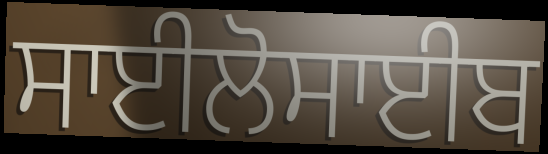
ਸਾਈਲੋਸਾਈਬ